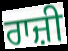
ਰਾਜ਼ੀ